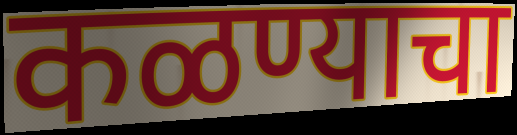
कळण्याचा